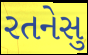
રતનેસુ